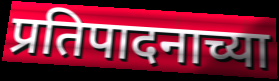
प्रतिपादनाच्या